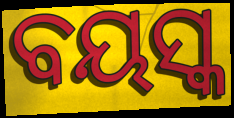
ବୟସ୍କ